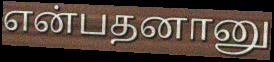
என்பதனானு